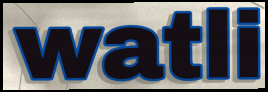
watli